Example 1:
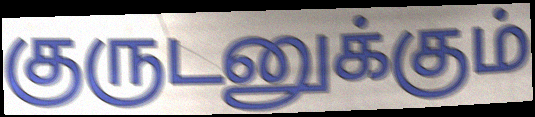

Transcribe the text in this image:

குருடனுக்கும்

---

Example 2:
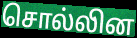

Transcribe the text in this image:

சொல்லின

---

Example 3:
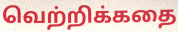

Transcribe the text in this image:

வெற்றிக்கதை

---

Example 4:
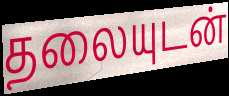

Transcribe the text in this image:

தலையுடன்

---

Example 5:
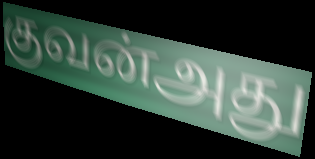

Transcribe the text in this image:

குவன்அது